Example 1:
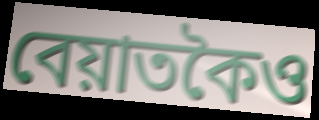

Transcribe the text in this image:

বেয়াতকৈও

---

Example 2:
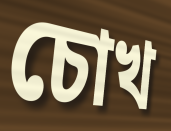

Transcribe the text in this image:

চোখ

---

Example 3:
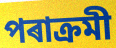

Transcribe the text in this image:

পৰাক্ৰমী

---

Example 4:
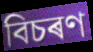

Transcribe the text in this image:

বিচৰণ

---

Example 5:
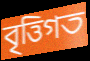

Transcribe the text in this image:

বৃত্তিগত